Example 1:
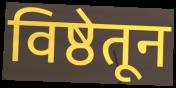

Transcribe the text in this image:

विष्ठेतून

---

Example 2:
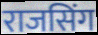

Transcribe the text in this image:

राजसिंग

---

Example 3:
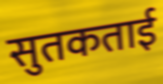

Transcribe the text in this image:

सुतकताई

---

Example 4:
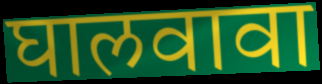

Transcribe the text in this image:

घालवावा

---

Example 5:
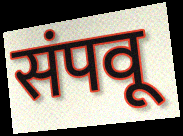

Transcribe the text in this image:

संपवू